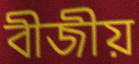
বীজীয়